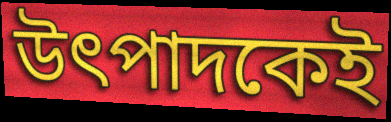
উৎপাদকেই